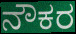
ನೌಕರ